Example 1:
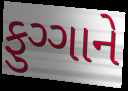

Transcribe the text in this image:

ફુગ્ગાને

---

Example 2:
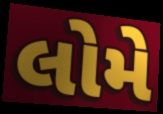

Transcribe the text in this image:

લોમે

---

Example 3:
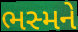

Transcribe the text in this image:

ભસ્મને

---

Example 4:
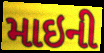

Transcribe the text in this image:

માઇની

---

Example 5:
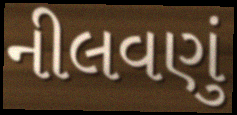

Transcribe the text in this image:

નીલવણું